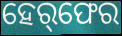
ହେର୍‌ଫେର